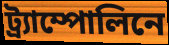
ট্র্যাম্পোলিনে